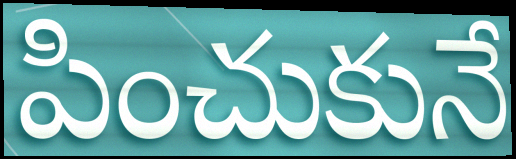
పించుకునే